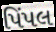
પિંપલ